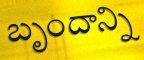
బృందాన్ని